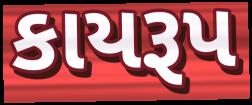
કાયરૂપ